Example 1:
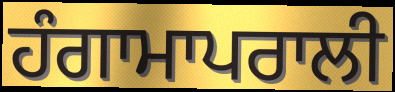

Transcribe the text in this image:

ਹੰਗਾਮਾਪਰਾਲੀ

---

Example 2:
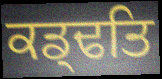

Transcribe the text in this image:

ਕਡ੍ਢਤਿ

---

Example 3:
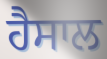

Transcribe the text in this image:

ਹੈਸਾਲ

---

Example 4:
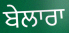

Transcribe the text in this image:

ਬੇਲਾਰਾ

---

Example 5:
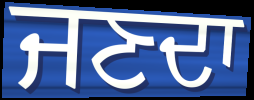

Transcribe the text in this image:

ਜਣਦਾ